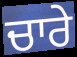
ਚਾਰੇ